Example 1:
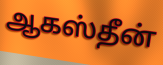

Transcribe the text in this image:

ஆகஸ்தீன்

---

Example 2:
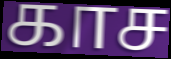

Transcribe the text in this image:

காச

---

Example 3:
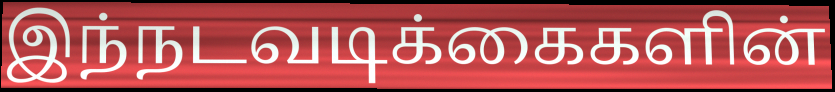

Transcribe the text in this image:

இந்நடவடிக்கைகளின்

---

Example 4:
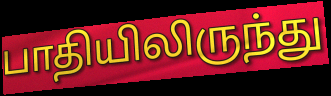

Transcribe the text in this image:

பாதியிலிருந்து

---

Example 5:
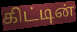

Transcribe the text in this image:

கிட்டின்